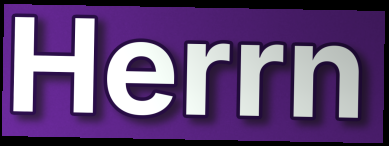
Herrn